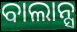
ବାଲାନ୍ସ